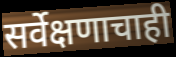
सर्वेक्षणाचाही